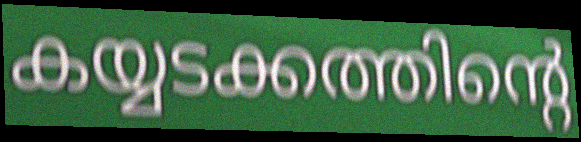
കയ്യടക്കത്തിന്റെ